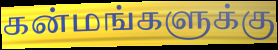
கன்மங்களுக்கு